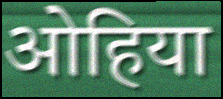
ओहिया